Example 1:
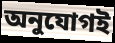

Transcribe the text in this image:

অনুযোগই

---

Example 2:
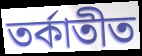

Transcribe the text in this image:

তর্কাতীত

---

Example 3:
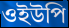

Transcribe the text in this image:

ওইউপি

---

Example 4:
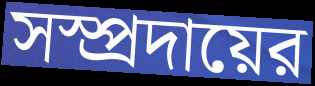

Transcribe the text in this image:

সস্প্রদায়ের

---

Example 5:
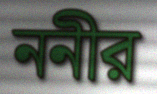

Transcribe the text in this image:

ননীর